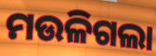
ମଉଳିଗଲା